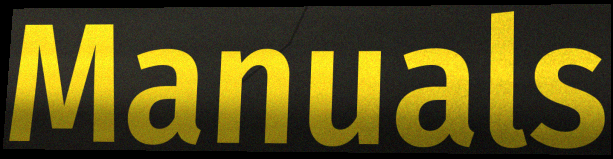
Manuals